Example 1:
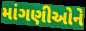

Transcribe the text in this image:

માંગણીઓને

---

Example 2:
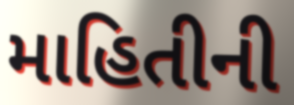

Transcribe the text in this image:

માહિતીની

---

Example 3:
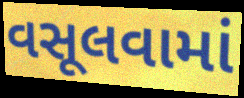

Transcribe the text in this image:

વસૂલવામાં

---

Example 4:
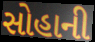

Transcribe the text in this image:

સોહાની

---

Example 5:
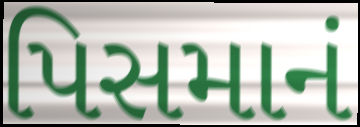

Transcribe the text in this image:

પિસમાનં